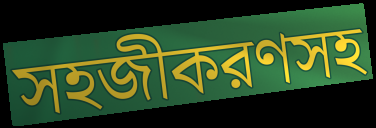
সহজীকরণসহ